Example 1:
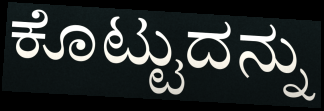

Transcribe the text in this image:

ಕೊಟ್ಟುದನ್ನು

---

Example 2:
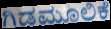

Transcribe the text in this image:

ಗಿಡಮೂಲಿಕೆ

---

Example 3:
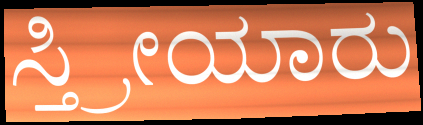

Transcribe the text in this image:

ಸ್ತ್ರೀಯಾರು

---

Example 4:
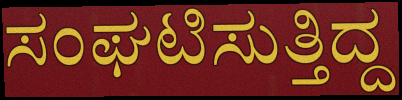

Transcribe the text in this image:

ಸಂಘಟಿಸುತ್ತಿದ್ದ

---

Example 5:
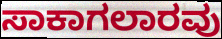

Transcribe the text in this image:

ಸಾಕಾಗಲಾರವು